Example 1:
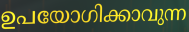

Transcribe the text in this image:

ഉപയോഗിക്കാവുന്ന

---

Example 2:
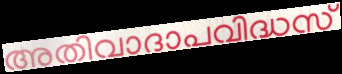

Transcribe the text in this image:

അതിവാദാപവിദ്ധസ്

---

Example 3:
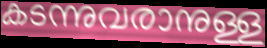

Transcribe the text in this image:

കടന്നുവരാനുള്ള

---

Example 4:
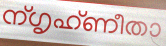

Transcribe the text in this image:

ന്ഗൃഹ്ണീതാ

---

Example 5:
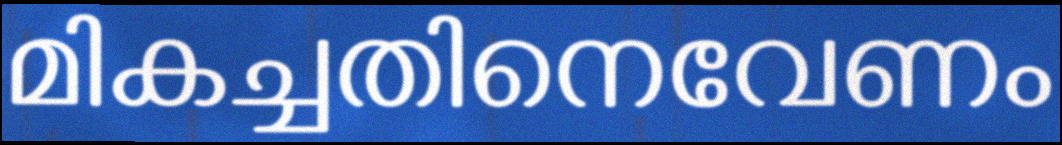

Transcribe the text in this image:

മികച്ചതിനെവേണം